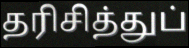
தரிசித்துப்